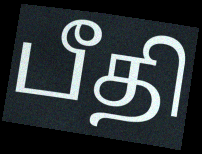
பீதி